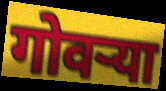
गोवर्‍या